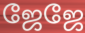
ஜேஜே